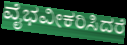
ವೈಭವೀಕರಿಸಿದರೆ